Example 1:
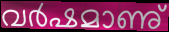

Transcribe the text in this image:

വർഷമാണു്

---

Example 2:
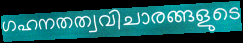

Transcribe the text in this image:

ഗഹനതത്വവിചാരങ്ങളുടെ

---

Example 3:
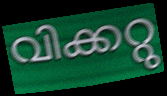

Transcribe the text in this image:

വിക്കറ്റു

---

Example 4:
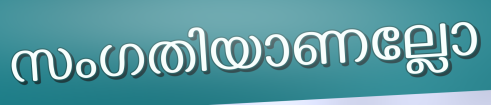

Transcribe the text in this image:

സംഗതിയാണല്ലോ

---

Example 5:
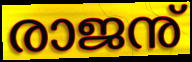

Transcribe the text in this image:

രാജനു്